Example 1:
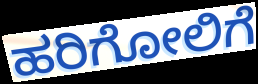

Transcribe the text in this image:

ಹರಿಗೋಲಿಗೆ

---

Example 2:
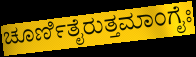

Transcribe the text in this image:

ಚೂರ್ಣಿತೈರುತ್ತಮಾಂಗೈಃ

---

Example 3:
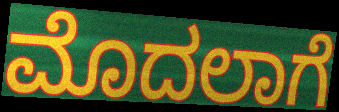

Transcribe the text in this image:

ಮೊದಲಾಗೆ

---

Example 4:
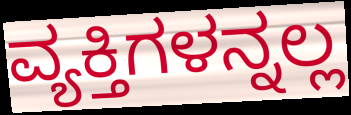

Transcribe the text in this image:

ವ್ಯಕ್ತಿಗಳನ್ನಲ್ಲ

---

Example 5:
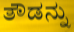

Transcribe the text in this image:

ತೌಡನ್ನು